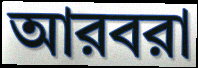
আরবরা